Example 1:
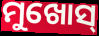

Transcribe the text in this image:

ମୁଖୋସ୍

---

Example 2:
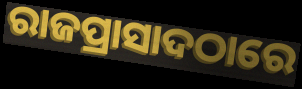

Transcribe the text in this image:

ରାଜପ୍ରାସାଦଠାରେ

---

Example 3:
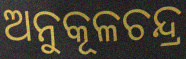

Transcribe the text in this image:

ଅନୁକୂଳଚନ୍ଦ୍ର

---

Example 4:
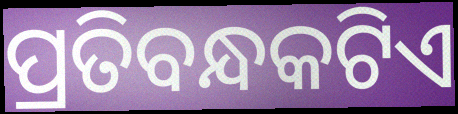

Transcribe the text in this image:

ପ୍ରତିବନ୍ଧକଟିଏ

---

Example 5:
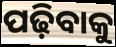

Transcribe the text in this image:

ପଢ଼ିବାକୁ